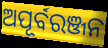
ଅପୂର୍ବରଞ୍ଜନ